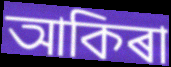
আকিৰা